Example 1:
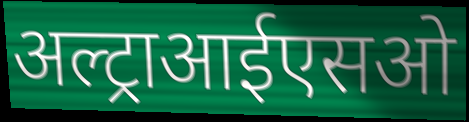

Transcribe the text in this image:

अल्ट्राआईएसओ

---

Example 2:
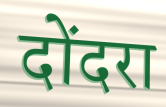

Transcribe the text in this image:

दोंदरा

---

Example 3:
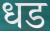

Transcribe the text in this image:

धड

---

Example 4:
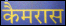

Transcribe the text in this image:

कैमरास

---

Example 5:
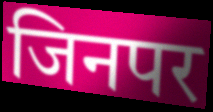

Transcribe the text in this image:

जिनपर